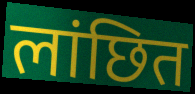
लांछित